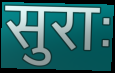
सुराः